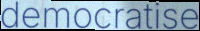
democratise